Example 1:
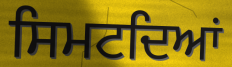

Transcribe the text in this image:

ਸਿਮਟਦਿਆਂ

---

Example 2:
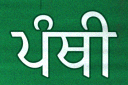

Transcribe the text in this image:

ਪੰਥੀ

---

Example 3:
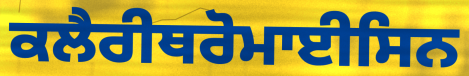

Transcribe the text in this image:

ਕਲੈਰੀਥਰੋਮਾਈਸਿਨ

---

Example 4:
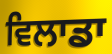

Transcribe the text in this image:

ਵਿਲਾਡਾ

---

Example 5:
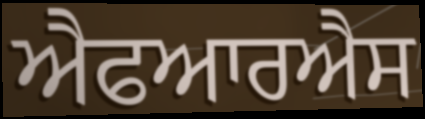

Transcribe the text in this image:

ਐਫਆਰਐਸ